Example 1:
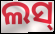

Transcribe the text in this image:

ଲସ୍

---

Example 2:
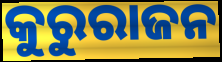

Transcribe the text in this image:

କୁରୁରାଜନ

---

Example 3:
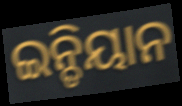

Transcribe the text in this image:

ଇନ୍ଡିୟାନ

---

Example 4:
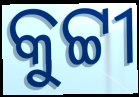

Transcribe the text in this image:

କୁଟ୍ଟୀ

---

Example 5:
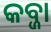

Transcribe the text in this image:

କବ୍ଜା